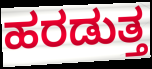
ಹರಡುತ್ತ